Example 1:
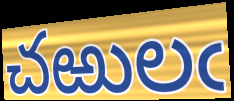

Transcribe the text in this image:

చఱులఁ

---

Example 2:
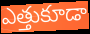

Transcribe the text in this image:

ఎత్తుకూడా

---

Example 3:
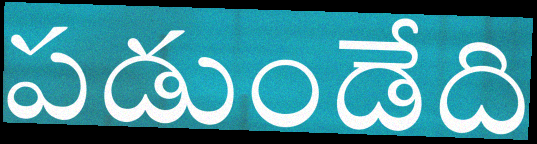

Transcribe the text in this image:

పడుండేది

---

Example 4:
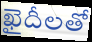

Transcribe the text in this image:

ఖైదీలతో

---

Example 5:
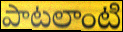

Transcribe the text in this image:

పాటలాంటి